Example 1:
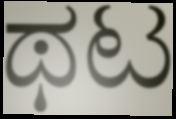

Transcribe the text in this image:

ಥಟ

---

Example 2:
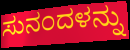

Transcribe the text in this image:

ಸುನಂದಳನ್ನು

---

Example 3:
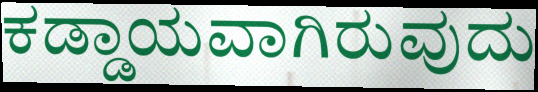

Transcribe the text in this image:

ಕಡ್ಡಾಯವಾಗಿರುವುದು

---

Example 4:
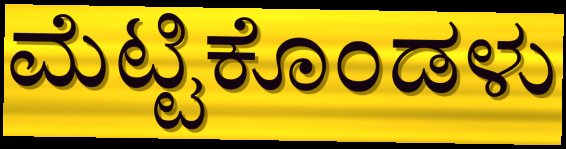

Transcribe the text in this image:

ಮೆಟ್ಟಿಕೊಂಡಳು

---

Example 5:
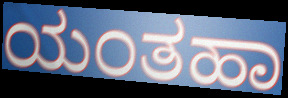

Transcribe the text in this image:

ಯಂತಹಾ